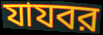
যাযবর